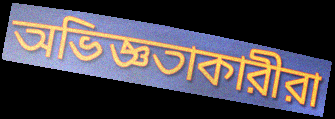
অভিজ্ঞতাকারীরা